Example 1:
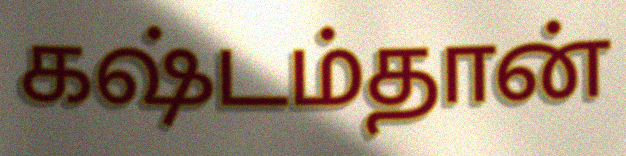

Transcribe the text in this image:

கஷ்டம்தான்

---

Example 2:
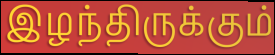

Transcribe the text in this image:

இழந்திருக்கும்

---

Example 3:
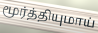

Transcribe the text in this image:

மூர்த்தியுமாய்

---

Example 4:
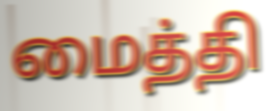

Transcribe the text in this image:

மைத்தி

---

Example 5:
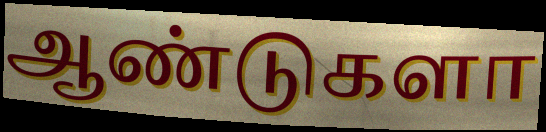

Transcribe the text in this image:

ஆண்டுகளா